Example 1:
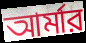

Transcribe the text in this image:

আর্মার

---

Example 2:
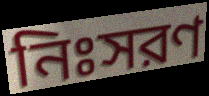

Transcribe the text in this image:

নিঃসরণ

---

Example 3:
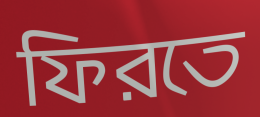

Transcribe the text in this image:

ফিরতে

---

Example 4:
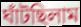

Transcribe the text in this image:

ঘাঁটছিলাম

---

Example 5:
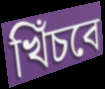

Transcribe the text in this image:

খিঁচবে